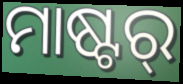
ମାଷ୍ଟର୍